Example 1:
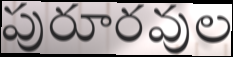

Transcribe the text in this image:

పురూరవుల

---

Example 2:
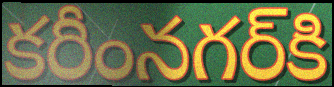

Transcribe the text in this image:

కరీంనగర్‌కి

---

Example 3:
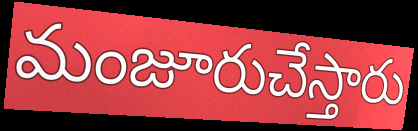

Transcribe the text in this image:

మంజూరుచేస్తారు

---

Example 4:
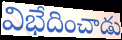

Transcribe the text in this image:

విభేదించాడు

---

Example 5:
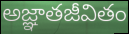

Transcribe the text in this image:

అజ్ఞాతజీవితం